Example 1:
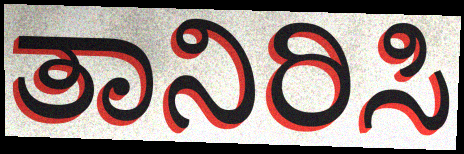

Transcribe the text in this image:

ತಾನಿರಿಸಿ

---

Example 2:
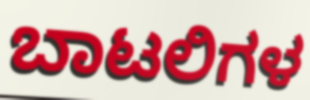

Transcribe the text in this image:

ಬಾಟಲಿಗಳ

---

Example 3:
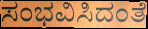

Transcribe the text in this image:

ಸಂಭವಿಸಿದಂತೆ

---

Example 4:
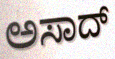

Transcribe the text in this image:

ಅಸಾದ್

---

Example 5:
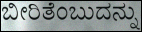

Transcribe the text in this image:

ಬೀರಿತೆಂಬುದನ್ನು